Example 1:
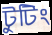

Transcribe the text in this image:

টুটিং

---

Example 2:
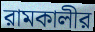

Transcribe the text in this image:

রামকালীর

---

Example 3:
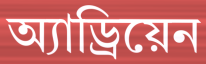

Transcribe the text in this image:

অ্যাড্রিয়েন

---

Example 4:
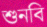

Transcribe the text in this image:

শুনবি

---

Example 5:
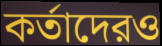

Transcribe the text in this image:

কর্তাদেরও